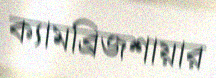
ক্যামব্রিজশায়ার